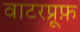
वाटरप्रूफ़